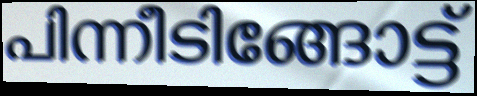
പിന്നീടിങ്ങോട്ട്